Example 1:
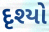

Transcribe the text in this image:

દૃશ્યો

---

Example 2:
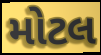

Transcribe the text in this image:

મોટલ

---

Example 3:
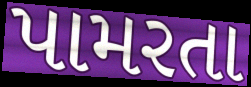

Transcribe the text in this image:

પામરતા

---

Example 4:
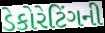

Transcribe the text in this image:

ડેકોરેટિંગની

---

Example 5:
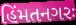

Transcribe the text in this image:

હિંમતનગરઃ